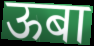
ऊबा